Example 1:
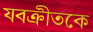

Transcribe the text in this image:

যবক্রীতকে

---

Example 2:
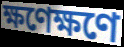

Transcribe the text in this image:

ক্ষণেক্ষণে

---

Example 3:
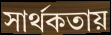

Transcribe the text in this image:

সার্থকতায়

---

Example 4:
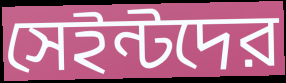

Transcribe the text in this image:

সেইন্টদের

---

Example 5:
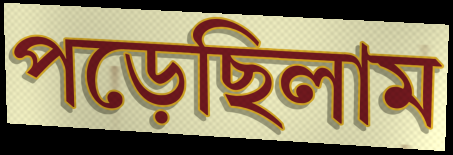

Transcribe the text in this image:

পড়েছিলাম